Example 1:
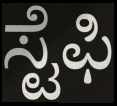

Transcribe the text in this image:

ಸ್ಟೆಫಿ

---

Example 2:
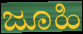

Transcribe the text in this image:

ಜೂಹಿ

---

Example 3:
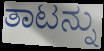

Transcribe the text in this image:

ತಾಟನ್ನು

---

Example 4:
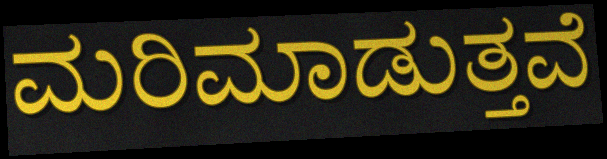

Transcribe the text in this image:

ಮರಿಮಾಡುತ್ತವೆ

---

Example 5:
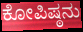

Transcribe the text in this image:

ಕೋಪಿಷ್ಠನು